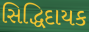
સિદ્ધિદાયક